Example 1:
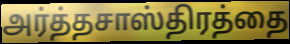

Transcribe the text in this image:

அர்த்தசாஸ்திரத்தை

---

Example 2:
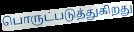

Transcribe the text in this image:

பொருட்படுத்துகிறது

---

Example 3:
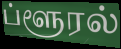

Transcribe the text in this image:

ப்ளூரல்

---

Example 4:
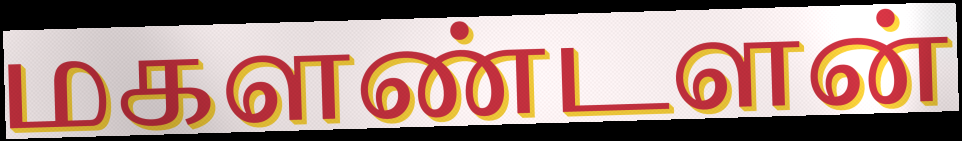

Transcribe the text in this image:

மகளண்டளன்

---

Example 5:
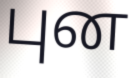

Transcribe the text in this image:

புன